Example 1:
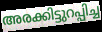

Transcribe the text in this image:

അരക്കിട്ടുറപ്പിച്ച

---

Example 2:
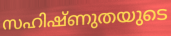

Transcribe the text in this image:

സഹിഷ്ണുതയുടെ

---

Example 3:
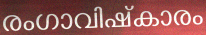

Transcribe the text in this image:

രംഗാവിഷ്‌കാരം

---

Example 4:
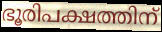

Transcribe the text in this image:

ഭൂരിപക്ഷത്തിന്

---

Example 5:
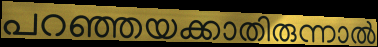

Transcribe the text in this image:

പറഞ്ഞയക്കാതിരുന്നാൽ